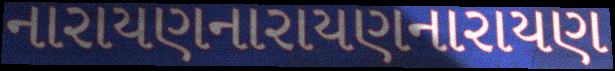
નારાયણનારાયણનારાયણ